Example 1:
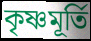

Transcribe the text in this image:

কৃষ্ণমূর্তি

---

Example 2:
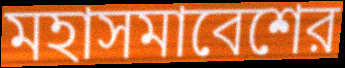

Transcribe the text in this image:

মহাসমাবেশের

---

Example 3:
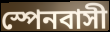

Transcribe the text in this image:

স্পেনবাসী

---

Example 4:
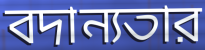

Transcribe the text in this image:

বদান্যতার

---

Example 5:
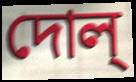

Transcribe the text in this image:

দোল্